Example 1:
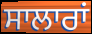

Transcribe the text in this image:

ਸਾਲਾਰਾਂ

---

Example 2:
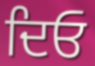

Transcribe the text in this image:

ਦਿਓ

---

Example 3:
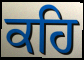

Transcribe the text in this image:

ਕਹਿ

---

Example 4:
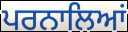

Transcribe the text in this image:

ਪਰਨਾਲਿਆਂ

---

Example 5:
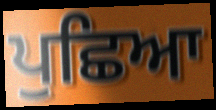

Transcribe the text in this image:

ਪੁਛਿਆ